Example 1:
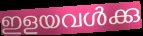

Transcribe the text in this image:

ഇളയവൾക്കു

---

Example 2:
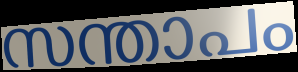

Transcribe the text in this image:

സന്താപം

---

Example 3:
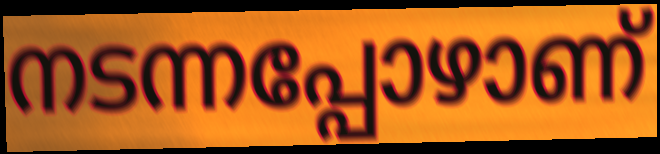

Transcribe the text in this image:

നടന്നപ്പോഴാണ്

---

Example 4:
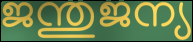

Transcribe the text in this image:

ജന്തുജന്യ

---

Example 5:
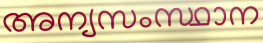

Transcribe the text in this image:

അന്യസംസ്ഥാന